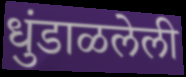
धुंडाळलेली